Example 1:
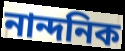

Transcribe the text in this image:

নান্দনিক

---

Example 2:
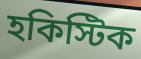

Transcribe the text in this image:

হকিস্টিক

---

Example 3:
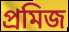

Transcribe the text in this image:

প্রমিজ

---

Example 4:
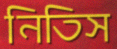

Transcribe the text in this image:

নিতিস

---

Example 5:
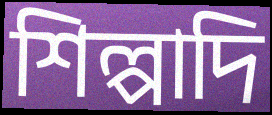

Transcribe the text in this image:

শিল্পাদি